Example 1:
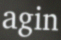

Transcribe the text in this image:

agin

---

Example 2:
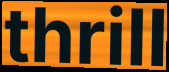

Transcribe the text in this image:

thrill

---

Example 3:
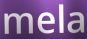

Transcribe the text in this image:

mela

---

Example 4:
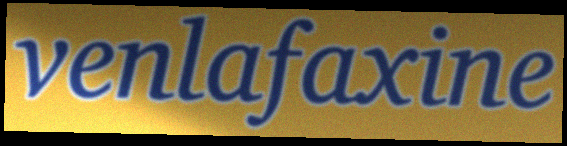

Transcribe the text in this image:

venlafaxine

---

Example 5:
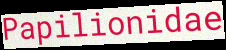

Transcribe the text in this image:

Papilionidae